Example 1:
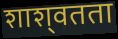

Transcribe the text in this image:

शाश्वतता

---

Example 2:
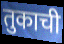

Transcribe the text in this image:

तुकाची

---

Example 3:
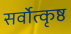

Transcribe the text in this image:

सर्वोत्कृष्ठ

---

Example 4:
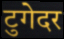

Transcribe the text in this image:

टुगेदर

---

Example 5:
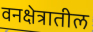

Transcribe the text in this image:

वनक्षेत्रातील